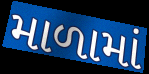
માળામાં